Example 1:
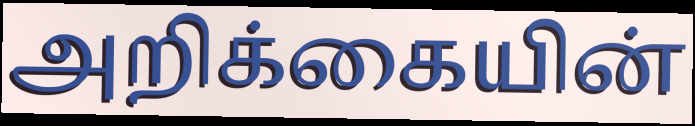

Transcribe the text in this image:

அறிக்கையின்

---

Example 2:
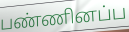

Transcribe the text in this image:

பண்ணினப்ப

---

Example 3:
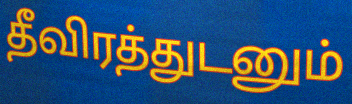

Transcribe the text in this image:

தீவிரத்துடனும்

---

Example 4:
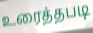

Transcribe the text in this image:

உரைத்தபடி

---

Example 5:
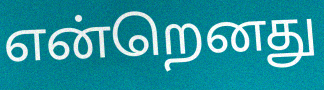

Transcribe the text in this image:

என்றெனது